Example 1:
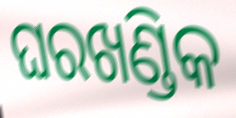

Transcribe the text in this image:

ଘରଖଣ୍ଡିକ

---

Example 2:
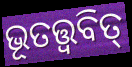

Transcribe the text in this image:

ଭୂତତ୍ତ୍ୱବିତ୍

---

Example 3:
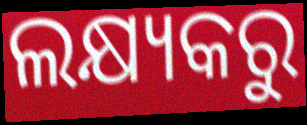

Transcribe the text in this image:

ଲକ୍ଷ୍ୟକରୁ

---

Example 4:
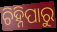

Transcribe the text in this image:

ଚିହ୍ନିପାରୁ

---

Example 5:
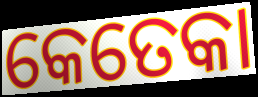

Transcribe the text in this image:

କେତେକା